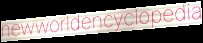
newworldencyclopedia